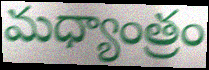
మధ్యాంత్రం